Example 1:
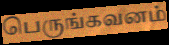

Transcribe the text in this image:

பெருங்கவனம்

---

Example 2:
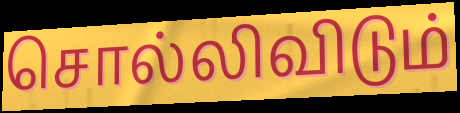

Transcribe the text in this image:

சொல்லிவிடும்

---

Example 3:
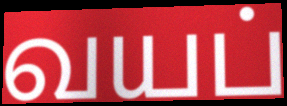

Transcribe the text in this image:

வயப்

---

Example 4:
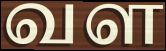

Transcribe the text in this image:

வள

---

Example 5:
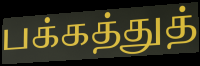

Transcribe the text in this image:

பக்கத்துத்